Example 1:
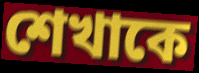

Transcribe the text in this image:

শেখাকে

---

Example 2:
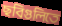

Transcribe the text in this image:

ছবিগুলিতে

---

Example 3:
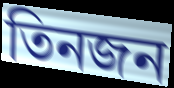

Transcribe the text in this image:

তিনজন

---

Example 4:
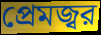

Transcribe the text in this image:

প্রেমজ্বর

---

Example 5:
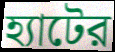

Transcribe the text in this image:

হ্যাটের